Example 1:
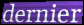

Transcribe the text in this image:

dernier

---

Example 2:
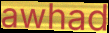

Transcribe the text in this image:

awhad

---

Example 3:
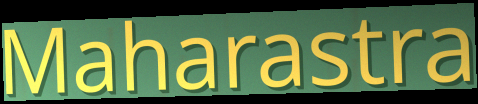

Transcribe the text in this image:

Maharastra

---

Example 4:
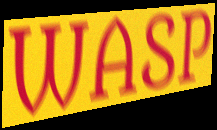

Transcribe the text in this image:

WASP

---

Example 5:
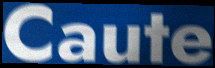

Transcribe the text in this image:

Caute